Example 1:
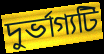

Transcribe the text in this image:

দুর্ভাগ্যটি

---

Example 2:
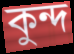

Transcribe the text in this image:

কুন্দ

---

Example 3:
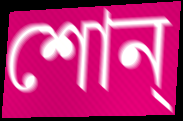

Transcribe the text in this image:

শোন্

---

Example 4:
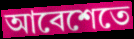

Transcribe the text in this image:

আবেশেতে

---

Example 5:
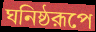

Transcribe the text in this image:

ঘনিষ্ঠরূপে